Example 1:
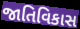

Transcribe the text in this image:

જાતિવિકાસ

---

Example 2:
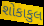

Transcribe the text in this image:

શોકાકુલ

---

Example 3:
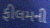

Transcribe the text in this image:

ફીલમની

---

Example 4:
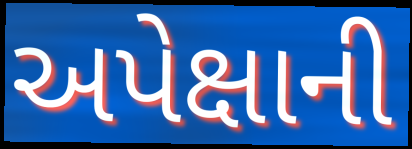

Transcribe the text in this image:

અપેક્ષાની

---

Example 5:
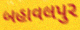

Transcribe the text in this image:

બહાવલપુર